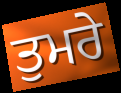
ਤੁਮਰੇ